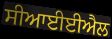
ਸੀਆਈਈਐਲ